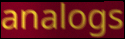
analogs